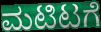
ಮಟಿಟಗೆ